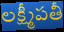
లక్ష్మీపతీ